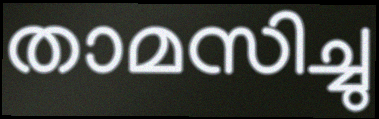
താമസിച്ചു